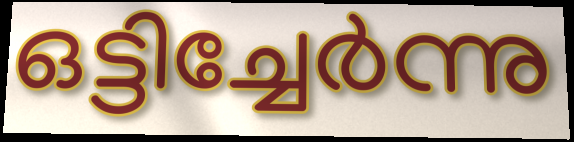
ഒട്ടിച്ചേർന്നു